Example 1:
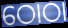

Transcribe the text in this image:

ଠୋଠା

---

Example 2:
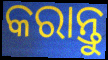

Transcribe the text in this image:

କରାନ୍ତୁ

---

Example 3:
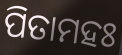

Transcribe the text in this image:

ପିତାମହଃ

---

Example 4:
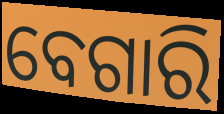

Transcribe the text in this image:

ବେଗାରି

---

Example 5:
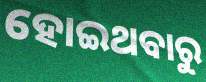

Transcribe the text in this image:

ହୋଇଥବାରୁ